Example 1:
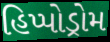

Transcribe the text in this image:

હિપ્પોડ્રોમ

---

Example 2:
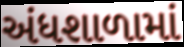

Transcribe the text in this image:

અંધશાળામાં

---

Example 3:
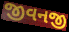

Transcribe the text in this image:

જીવનજી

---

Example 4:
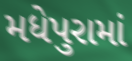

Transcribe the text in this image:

મધેપુરામાં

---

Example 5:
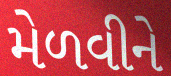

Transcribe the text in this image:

મેળવીને